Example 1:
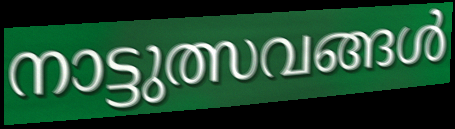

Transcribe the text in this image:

നാട്ടുത്സവങ്ങൾ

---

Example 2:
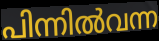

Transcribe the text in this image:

പിന്നിൽവന്ന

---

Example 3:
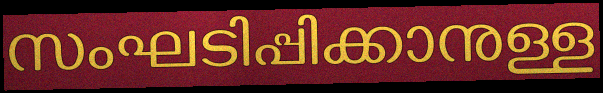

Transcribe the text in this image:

സംഘടിപ്പിക്കാനുള്ള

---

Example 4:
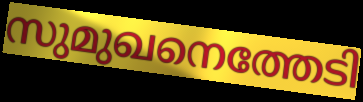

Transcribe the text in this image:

സുമുഖനെത്തേടി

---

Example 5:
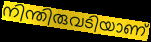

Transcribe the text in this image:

നിന്തിരുവടിയാണ്